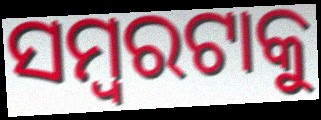
ସମ୍ବରଟାକୁ